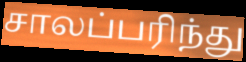
சாலப்பரிந்து